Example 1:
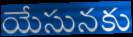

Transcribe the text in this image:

యేసునకు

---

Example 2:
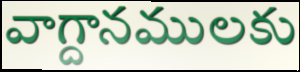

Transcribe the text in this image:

వాగ్దానములకు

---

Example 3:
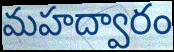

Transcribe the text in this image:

మహద్వారం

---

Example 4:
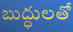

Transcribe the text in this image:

బుద్ధులతో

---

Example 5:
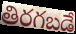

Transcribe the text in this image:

తిరగబడే